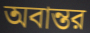
অবান্তর